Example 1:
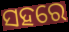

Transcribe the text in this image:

ସହରେ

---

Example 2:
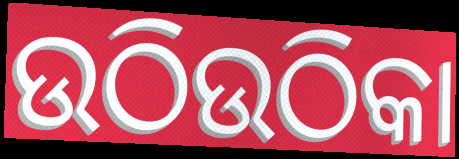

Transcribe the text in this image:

ଉଠିଉଠିକା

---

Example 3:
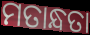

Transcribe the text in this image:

ମତାନ୍ଧତା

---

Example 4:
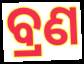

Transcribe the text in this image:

ବ୍ରଣ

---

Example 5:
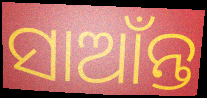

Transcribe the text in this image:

ସାଆଁନ୍ତ